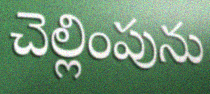
చెల్లింపును